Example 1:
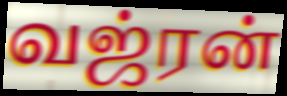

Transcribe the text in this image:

வஜ்ரன்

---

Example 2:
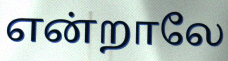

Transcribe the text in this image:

என்றாலே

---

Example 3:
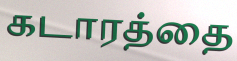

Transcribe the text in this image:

கடாரத்தை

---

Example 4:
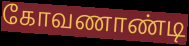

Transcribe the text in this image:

கோவணாண்டி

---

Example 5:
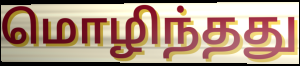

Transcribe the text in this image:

மொழிந்தது